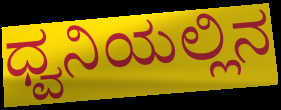
ಧ್ವನಿಯಲ್ಲಿನ